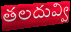
తలదువ్వి